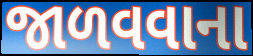
જાળવવાના